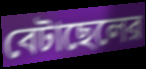
বেটাছেলের